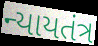
ન્યાયતંત્ર